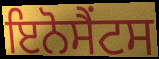
ਇਨੋਸੈਂਟਸ